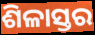
ଶିଳାସ୍ତର